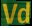
Vd